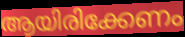
ആയിരിക്കേണം